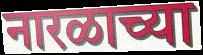
नारळाच्या